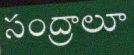
సంద్రాలూ